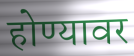
होण्यावर